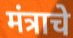
मंत्राचे